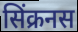
सिंक्रनस